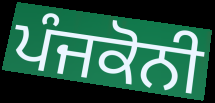
ਪੰਜਕੋਨੀ